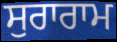
ਸੁਰਾਰਾਮ